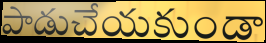
పాడుచేయకుండా